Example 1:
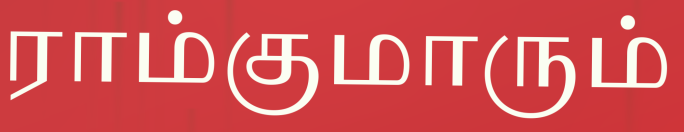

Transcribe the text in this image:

ராம்குமாரும்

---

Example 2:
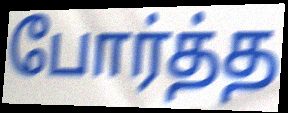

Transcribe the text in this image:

போர்த்த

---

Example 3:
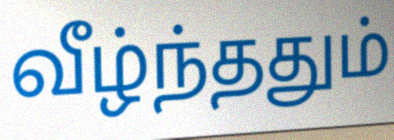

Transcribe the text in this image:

வீழ்ந்ததும்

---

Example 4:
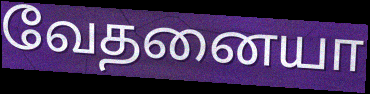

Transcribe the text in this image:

வேதனையா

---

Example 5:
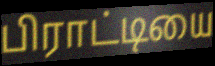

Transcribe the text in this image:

பிராட்டியை